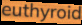
euthyroid